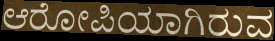
ಆರೋಪಿಯಾಗಿರುವ